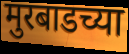
मुरबाडच्या